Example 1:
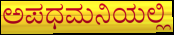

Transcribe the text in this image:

ಅಪಧಮನಿಯಲ್ಲಿ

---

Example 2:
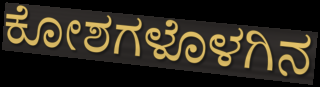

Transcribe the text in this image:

ಕೋಶಗಳೊಳಗಿನ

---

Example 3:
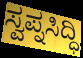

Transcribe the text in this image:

ಸ್ವಪ್ನಸಿದ್ಧಿ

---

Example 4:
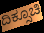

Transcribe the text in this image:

ದಿಕ್ಸೂಚಿ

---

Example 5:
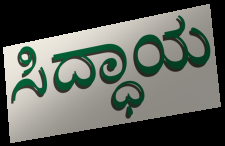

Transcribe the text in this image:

ಸಿದ್ಧಾಯ